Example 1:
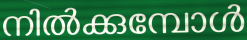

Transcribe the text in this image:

നിൽക്കുമ്പോൾ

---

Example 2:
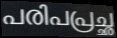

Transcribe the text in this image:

പരിപപ്രച്ഛ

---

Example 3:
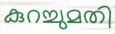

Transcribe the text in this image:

കുറച്ചുമതി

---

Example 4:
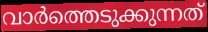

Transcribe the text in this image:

വാർത്തെടുക്കുന്നത്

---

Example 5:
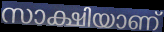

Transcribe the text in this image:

സാക്ഷിയാണ്